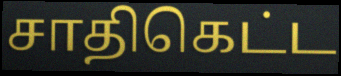
சாதிகெட்ட